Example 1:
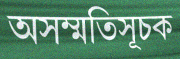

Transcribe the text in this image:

অসম্মতিসূচক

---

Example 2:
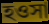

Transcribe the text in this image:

হওসা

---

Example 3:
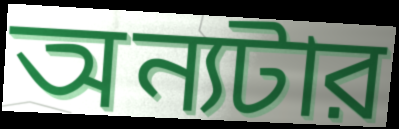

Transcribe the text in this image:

অন্যটার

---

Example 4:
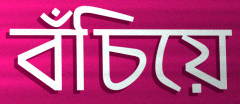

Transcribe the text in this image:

বঁচিয়ে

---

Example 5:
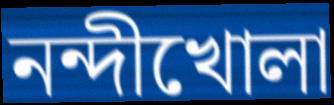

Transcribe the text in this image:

নন্দীখোলা